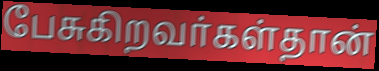
பேசுகிறவர்கள்தான்